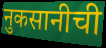
नुकसानीची